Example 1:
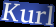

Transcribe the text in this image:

Kurl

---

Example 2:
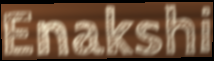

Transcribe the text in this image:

Enakshi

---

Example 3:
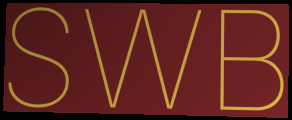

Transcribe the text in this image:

SWB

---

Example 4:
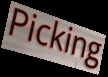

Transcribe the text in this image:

Picking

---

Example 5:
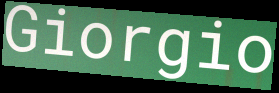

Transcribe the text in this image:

Giorgio